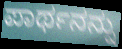
ಪಾರ್ಥನನ್ನು